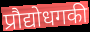
प्रौद्योधगकी